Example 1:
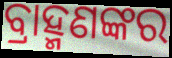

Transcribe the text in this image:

ବ୍ରାହ୍ମଣଙ୍କର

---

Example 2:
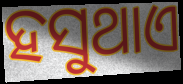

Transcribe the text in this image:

ହସୁଥାଏ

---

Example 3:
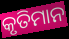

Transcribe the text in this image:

କୃତିମାନ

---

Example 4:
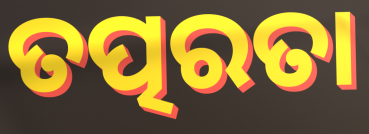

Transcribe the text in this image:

ତତ୍ପରତା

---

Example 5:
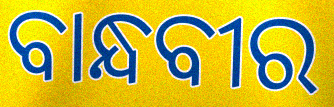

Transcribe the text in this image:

ବାନ୍ଧବୀର